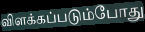
விளக்கப்படும்போது